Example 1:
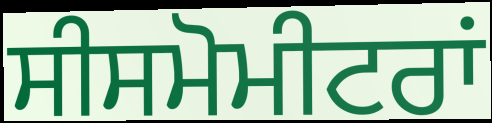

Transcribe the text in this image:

ਸੀਸਮੋਮੀਟਰਾਂ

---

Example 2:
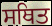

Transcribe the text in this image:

ਸਥਿਤ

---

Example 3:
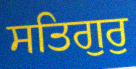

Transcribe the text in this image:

ਸਤਿਗੁਰੁ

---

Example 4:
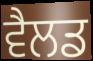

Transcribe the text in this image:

ਵੈਲਡ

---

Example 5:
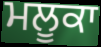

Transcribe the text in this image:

ਮਲੂਕਾ